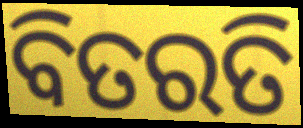
ବିତରତି